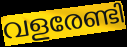
വളരേണ്ടി